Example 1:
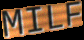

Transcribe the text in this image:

MILF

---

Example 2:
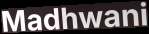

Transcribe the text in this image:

Madhwani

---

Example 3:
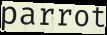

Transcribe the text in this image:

parrot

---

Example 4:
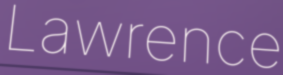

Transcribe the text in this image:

Lawrence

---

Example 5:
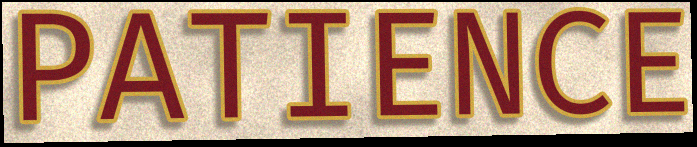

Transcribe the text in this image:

PATIENCE